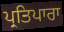
ਪ੍ਰਤਿਪਾਰਾ